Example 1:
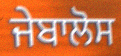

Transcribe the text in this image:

ਜੇਬਾਲੋਸ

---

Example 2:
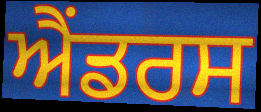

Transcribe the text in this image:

ਐਂਡਰਸ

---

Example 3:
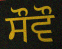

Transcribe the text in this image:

ਸੌਵੌ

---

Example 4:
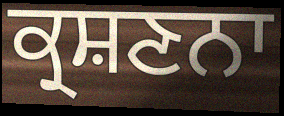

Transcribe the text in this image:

ਕ੍ਰਸ਼ਣਨਾ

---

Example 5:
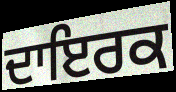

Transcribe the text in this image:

ਦਾਇਰਕ